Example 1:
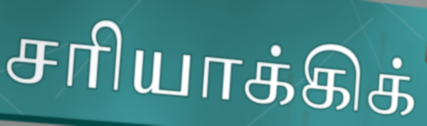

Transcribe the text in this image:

சரியாக்கிக்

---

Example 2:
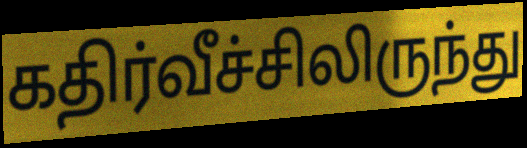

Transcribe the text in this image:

கதிர்வீச்சிலிருந்து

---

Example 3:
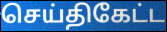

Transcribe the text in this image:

செய்திகேட்ட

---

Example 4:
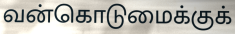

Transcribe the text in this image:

வன்கொடுமைக்குக்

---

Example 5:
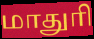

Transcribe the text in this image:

மாதுரி